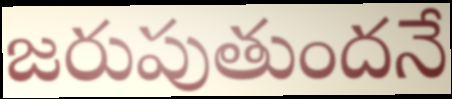
జరుపుతుందనే